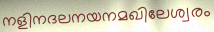
നളിനദലനയനമഖിലേശ്വരം